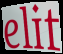
elit